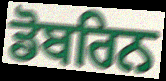
ਡੋਬਰਿਨ